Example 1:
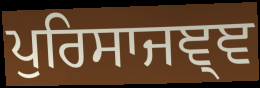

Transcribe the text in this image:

ਪੁਰਿਸਾਜਞ੍ਞ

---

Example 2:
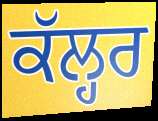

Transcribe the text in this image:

ਕੱਲ੍ਹਰ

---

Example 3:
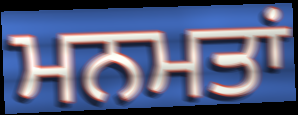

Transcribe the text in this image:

ਮਨਮਤਾਂ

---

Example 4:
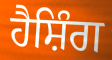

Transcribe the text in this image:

ਹੈਸ਼ਿੰਗ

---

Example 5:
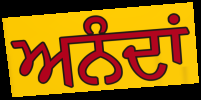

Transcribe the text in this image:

ਅਨੰਦਾਂ